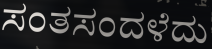
ಸಂತಸಂದಳೆದು